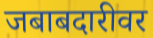
जबाबदारीवर